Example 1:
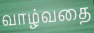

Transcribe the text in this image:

வாழ்வதை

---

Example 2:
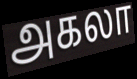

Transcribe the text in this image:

அகலா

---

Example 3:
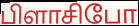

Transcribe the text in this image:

பிளாசிபோ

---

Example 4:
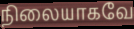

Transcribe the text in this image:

நிலையாகவே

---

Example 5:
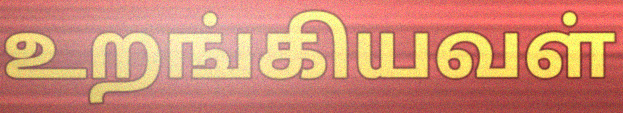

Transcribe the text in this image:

உறங்கியவள்